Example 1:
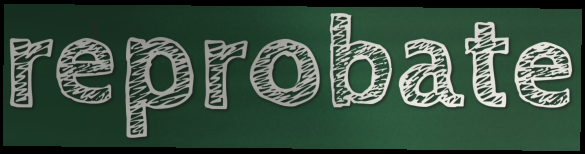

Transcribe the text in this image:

reprobate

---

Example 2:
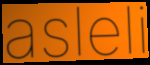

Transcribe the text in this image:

asleli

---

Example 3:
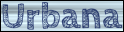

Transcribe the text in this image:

Urbana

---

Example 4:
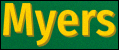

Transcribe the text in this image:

Myers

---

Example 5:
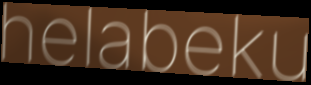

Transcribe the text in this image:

helabeku